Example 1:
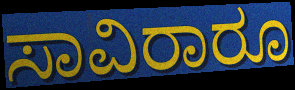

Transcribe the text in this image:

ಸಾವಿರಾರೂ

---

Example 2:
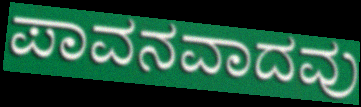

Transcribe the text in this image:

ಪಾವನವಾದವು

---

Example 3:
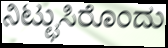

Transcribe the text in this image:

ನಿಟ್ಟುಸಿರೊಂದು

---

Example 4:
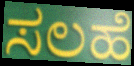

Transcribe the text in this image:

ಸಲಹೆ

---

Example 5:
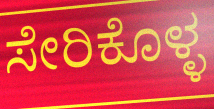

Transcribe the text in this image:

ಸೇರಿಕೊಳ್ಳ